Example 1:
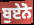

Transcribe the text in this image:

ਬੁਏਨੋ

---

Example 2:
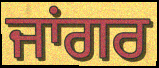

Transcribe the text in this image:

ਜਾਂਗਰ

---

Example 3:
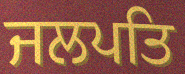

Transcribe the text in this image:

ਜਲਪਤਿ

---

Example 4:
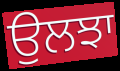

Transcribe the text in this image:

ਉਲਝਾ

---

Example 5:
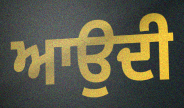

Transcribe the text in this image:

ਆਉਦੀ